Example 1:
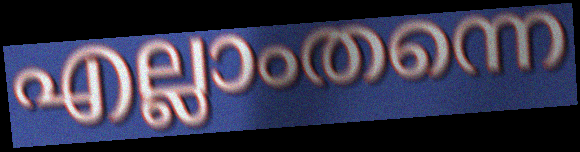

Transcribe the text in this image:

എല്ലാംതന്നെ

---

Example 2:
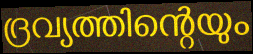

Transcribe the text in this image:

ദ്രവ്യത്തിന്റെയും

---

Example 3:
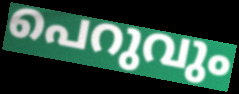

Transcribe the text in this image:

പെറുവും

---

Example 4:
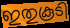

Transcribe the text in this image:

ഇതുകൂടി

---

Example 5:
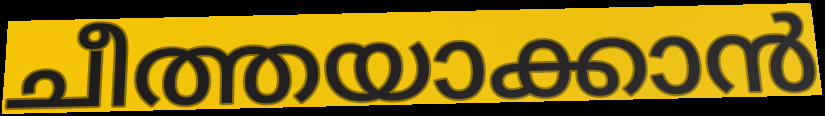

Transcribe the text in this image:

ചീത്തയാക്കാൻ